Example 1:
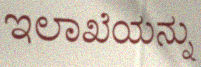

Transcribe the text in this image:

ಇಲಾಖೆಯನ್ನು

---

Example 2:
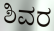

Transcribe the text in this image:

ಶಿವರ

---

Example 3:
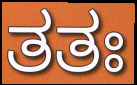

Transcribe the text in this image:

ತತಃ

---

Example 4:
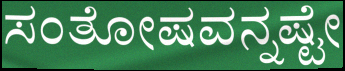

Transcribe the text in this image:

ಸಂತೋಷವನ್ನಷ್ಟೇ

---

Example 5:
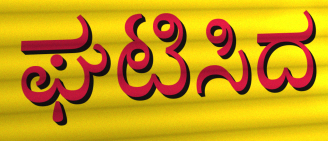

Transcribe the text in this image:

ಘಟಿಸಿದ